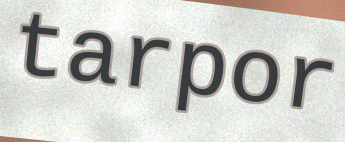
tarpor